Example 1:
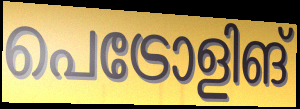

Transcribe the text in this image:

പെട്രോളിങ്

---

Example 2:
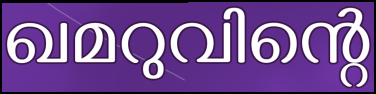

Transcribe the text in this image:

ഖമറുവിന്റെ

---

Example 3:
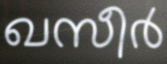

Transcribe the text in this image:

ഖസീർ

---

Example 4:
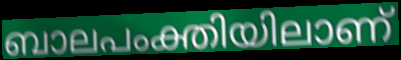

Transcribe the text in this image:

ബാലപംക്തിയിലാണ്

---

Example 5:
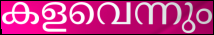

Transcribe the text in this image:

കളവെന്നും